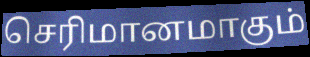
செரிமானமாகும்